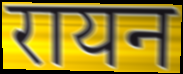
रायन